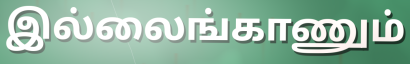
இல்லைங்காணும்